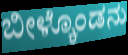
ಬೀಳ್ಕೊಂಡನು